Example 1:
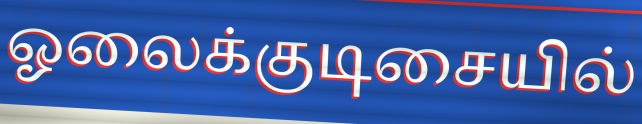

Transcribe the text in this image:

ஓலைக்குடிசையில்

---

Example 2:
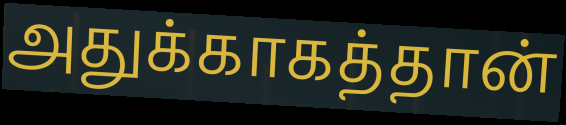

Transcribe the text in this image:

அதுக்காகத்தான்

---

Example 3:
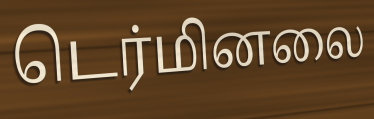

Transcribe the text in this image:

டெர்மினலை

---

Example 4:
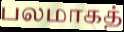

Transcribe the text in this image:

பலமாகத்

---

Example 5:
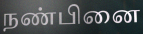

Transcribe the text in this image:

நண்பினை